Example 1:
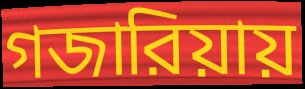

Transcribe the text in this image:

গজারিয়ায়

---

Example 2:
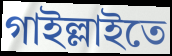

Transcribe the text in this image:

গাইল্লাইতে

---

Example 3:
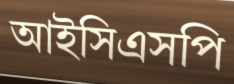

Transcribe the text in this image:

আইসিএসপি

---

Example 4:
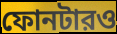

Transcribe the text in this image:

ফোনটারও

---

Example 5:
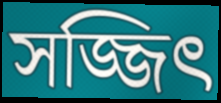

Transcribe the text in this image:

সজ্জিৎ